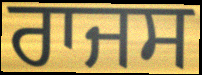
ਰਾਜਸ